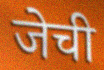
जेची